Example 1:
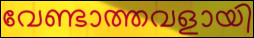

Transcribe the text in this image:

വേണ്ടാത്തവളായി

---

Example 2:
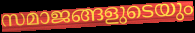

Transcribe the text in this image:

സമാജങ്ങളുടെയും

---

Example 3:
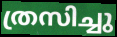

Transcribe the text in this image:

ത്രസിച്ചു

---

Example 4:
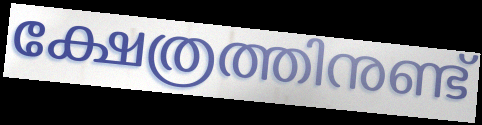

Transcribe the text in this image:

ക്ഷേത്രത്തിനുണ്ട്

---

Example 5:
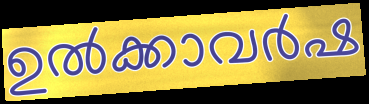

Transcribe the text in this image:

ഉൽക്കാവർഷ